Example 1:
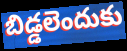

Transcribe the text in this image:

బిడ్డలెందుకు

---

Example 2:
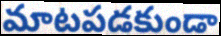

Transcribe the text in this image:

మాటపడకుండా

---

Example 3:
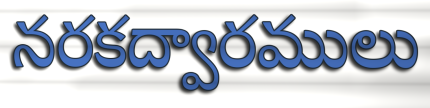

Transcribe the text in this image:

నరకద్వారములు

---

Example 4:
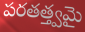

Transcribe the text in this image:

పరతత్త్వమై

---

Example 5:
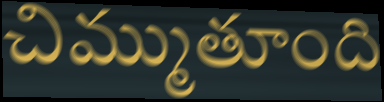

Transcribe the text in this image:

చిమ్ముతూంది